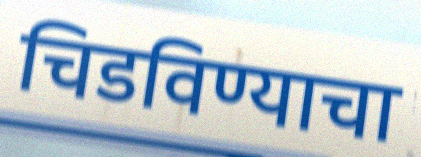
चिडविण्याचा